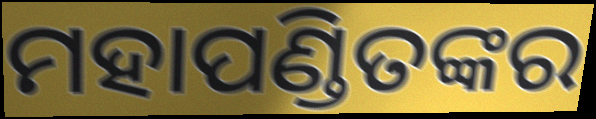
ମହାପଣ୍ଡିତଙ୍କର